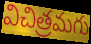
విచిత్రమగు